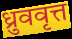
ध्रुववृत्त